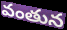
వంతున